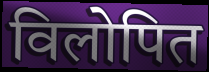
विलोपित